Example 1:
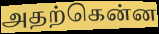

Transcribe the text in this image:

அதற்கென்ன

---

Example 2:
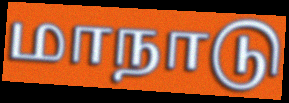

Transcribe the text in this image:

மாநாடு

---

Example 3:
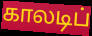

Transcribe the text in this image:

காலடிப்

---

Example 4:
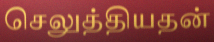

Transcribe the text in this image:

செலுத்தியதன்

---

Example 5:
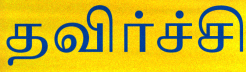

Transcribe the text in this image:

தவிர்ச்சி